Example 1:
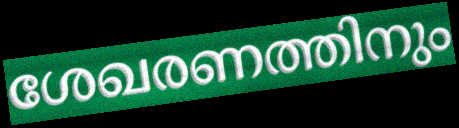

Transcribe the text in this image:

ശേഖരണത്തിനും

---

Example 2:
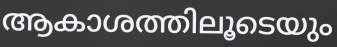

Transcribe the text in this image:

ആകാശത്തിലൂടെയും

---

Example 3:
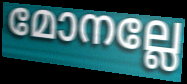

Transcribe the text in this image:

മോനല്ലേ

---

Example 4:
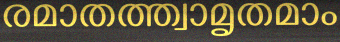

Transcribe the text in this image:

രമാതത്ത്വാമൃതമാം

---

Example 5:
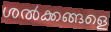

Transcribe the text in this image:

ശൽക്കങ്ങളെ